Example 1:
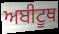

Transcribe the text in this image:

ਅਬੀਟੂਥ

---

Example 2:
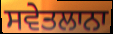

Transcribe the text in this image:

ਸਵੇਤਲਾਨਾ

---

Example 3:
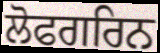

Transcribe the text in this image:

ਲੋਫਗਰਿਨ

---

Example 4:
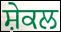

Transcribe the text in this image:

ਸ਼ੇਕਲ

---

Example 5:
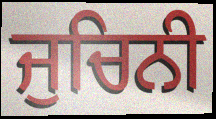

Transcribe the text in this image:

ਜੁਚਿਨੀ